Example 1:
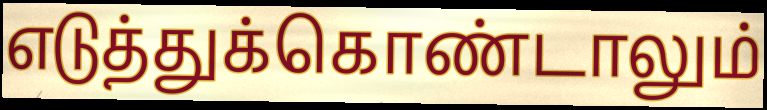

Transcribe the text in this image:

எடுத்துக்கொண்டாலும்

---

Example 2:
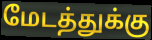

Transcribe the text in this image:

மேடத்துக்கு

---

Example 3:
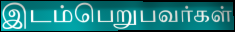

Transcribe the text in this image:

இடம்பெறுபவர்கள்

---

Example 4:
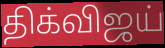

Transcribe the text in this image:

திக்விஜய்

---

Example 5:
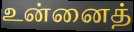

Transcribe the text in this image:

உன்னைத்